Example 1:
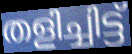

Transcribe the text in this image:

തളിച്ചിട്ട്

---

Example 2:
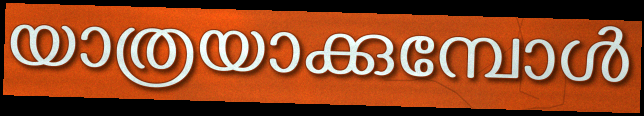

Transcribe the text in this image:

യാത്രയാക്കുമ്പോൾ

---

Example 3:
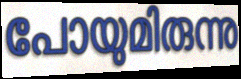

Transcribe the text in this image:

പോയുമിരുന്നു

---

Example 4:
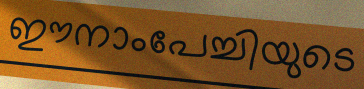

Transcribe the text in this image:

ഈനാംപേച്ചിയുടെ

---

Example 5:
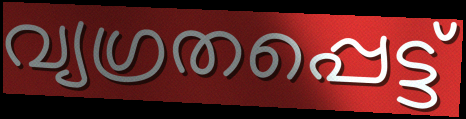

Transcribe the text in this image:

വ്യഗ്രതപ്പെട്ട്